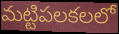
మట్టిపలకలలో